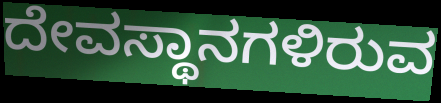
ದೇವಸ್ಥಾನಗಳಿರುವ